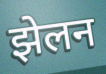
झेलन